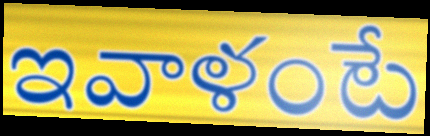
ఇవాళంటే